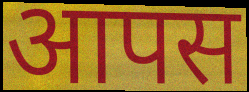
आपस